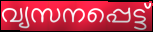
വ്യസനപ്പെട്ട്